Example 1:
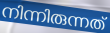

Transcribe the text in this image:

നിന്നിരുന്നത്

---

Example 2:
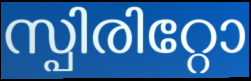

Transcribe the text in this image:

സ്പിരിറ്റോ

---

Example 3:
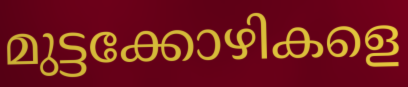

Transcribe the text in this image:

മുട്ടക്കോഴികളെ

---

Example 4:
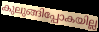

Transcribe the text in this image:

കുലുങ്ങിപ്പോകയില്ല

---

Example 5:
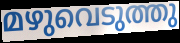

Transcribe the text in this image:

മഴുവെടുത്തു